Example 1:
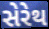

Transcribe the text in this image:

સેરેથ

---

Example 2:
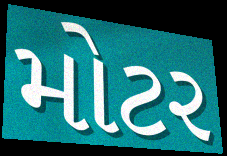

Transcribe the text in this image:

મોટર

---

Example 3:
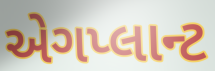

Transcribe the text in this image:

એગપ્લાન્ટ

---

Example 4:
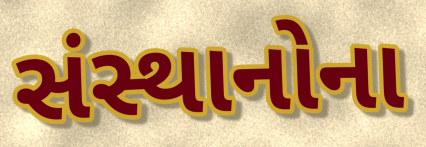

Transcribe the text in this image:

સંસ્થાનોના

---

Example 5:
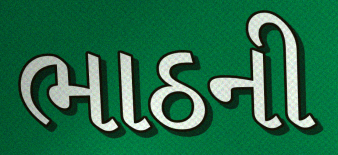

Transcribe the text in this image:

ભાઠની